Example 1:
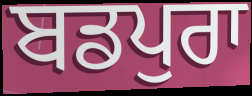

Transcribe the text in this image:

ਬਡਪੁਰਾ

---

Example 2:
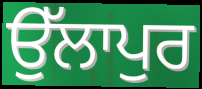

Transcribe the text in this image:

ਉੱਲਾਪੁਰ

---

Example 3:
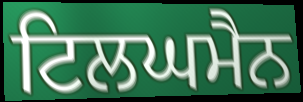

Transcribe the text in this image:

ਟਿਲਘਮੈਨ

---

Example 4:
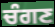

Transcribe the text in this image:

ਚੰਗਣ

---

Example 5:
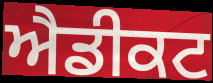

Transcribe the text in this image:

ਐਡੀਕਟ